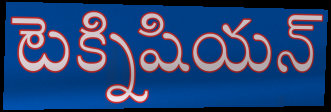
టెక్నిషియన్